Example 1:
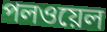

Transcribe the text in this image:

পলওয়েল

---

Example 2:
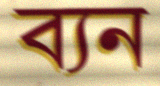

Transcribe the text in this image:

ব্যন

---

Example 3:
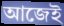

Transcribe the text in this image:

আজেই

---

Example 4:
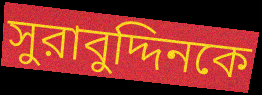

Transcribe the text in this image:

সুরাবুদ্দিনকে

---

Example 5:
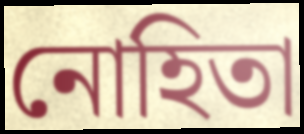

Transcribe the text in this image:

নোহিতা